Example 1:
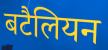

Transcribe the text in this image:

बटैलियन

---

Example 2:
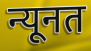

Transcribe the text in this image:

न्यूनत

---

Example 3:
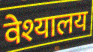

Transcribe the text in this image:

वेश्यालय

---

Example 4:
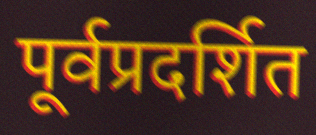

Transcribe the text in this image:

पूर्वप्रदर्शित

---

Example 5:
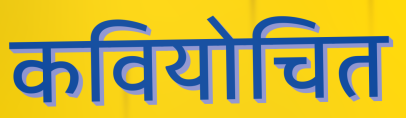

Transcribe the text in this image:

कवियोचित